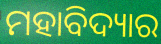
ମହାବିଦ୍ୟାର